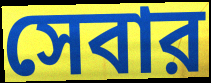
সেবার